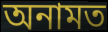
অনামত